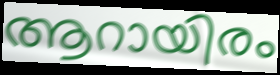
ആറായിരം